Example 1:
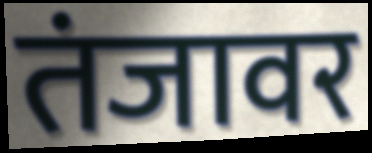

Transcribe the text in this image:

तंजावर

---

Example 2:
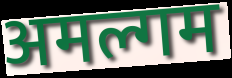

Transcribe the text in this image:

अमल्गम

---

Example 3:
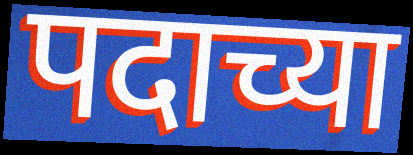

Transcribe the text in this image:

पदाच्या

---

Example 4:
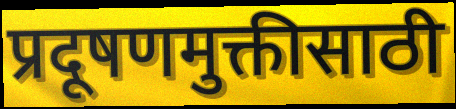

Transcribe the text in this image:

प्रदूषणमुक्तीसाठी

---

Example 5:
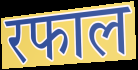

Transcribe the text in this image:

रफाल